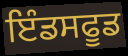
ਇੰਡਸਫੂਡ